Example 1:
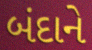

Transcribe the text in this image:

બંદાને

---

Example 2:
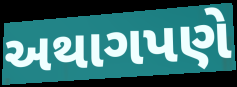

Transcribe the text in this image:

અથાગપણે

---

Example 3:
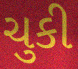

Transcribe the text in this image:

ચુકી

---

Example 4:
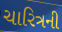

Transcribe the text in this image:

ચારિત્રની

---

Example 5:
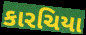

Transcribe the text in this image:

કારચિયા